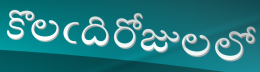
కొలఁదిరోజులలో